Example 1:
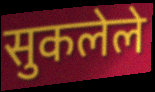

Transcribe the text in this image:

सुकलेले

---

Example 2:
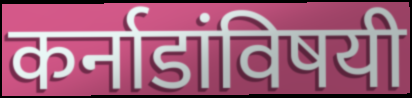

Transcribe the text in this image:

कर्नाडांविषयी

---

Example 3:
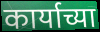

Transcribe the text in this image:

कार्याच्या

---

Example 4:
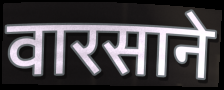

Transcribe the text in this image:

वारसाने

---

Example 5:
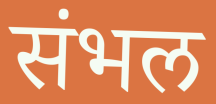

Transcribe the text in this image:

संभल